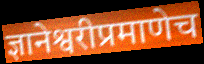
ज्ञानेश्वरीप्रमाणेच